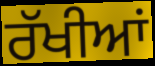
ਰੱਖੀਆਂ